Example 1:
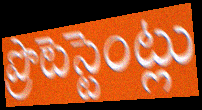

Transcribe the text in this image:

ప్రొటెస్టెంట్లు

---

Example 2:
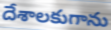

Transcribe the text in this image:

దేశాలకుగాను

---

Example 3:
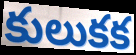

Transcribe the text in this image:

కులుకక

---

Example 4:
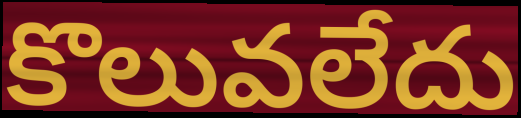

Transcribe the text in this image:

కొలువలేదు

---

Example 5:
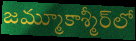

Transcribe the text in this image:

జమ్మూకాశ్మీర్‌లో